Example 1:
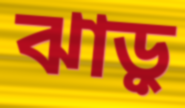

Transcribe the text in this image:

ঝাড়ু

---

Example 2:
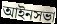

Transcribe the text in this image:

আইনসভা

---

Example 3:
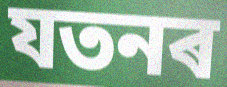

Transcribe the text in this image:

যতনৰ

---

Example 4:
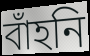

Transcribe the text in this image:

বাঁহনি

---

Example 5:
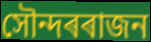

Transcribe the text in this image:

সৌন্দৰৰাজন